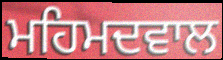
ਮਹਿਮਦਵਾਲ